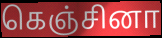
கெஞ்சினா